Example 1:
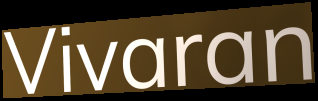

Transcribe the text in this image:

Vivaran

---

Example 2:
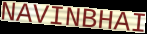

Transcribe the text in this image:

NAVINBHAI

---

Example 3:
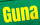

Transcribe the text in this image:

Guna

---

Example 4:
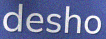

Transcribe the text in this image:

desho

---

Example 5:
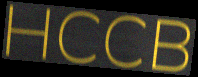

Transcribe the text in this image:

HCCB